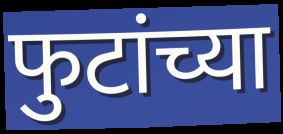
फुटांच्‍या